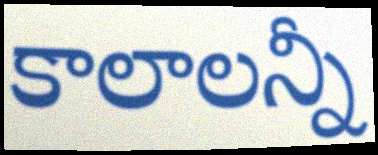
కాలాలన్నీ